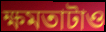
ক্ষমতাটাও